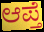
ಆಪ್ತೆ